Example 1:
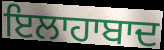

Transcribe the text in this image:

ਇਲਾਹਾਬਾਦ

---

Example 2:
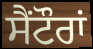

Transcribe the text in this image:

ਸੈਂਟੌਰਾਂ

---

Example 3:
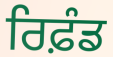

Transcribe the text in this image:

ਰਿਫ਼ੰਡ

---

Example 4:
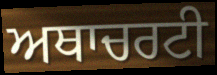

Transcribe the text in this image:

ਅਥਾਚਰਟੀ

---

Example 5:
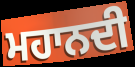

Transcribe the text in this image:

ਮਹਾਨਦੀ